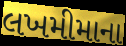
લખમીમાના